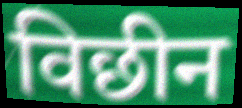
विछीन